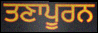
ਤਣਾਪੂਰਨ